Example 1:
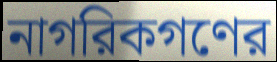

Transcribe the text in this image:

নাগরিকগণের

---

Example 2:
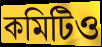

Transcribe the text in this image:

কমিটিও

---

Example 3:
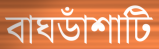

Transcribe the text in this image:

বাঘডাঁশাটি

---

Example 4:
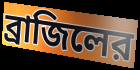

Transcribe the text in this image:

ব্রাজিলের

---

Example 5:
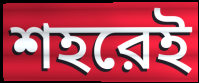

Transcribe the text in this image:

শহরেই